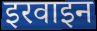
इरवाइन